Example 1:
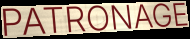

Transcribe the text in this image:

PATRONAGE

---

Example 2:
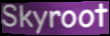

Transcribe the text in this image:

Skyroot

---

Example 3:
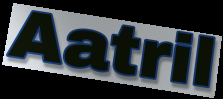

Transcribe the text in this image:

Aatril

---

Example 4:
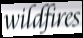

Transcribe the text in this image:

wildfires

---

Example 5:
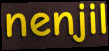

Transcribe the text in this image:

nenjil